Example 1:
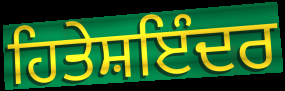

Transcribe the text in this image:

ਹਿਤੇਸ਼ਇੰਦਰ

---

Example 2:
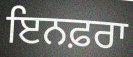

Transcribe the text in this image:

ਇਨਫ਼ਰਾ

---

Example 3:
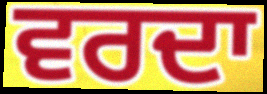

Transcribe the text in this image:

ਵਰਦਾ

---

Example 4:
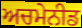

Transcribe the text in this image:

ਅਚਮੇਨੀਡ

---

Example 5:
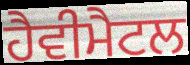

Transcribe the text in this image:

ਹੈਵੀਮੈਟਲ